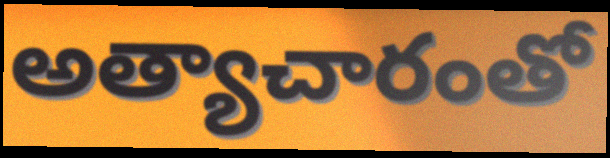
అత్యాచారంతో